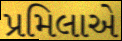
પ્રમિલાએ